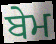
ਬੇਮ